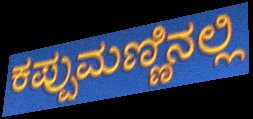
ಕಪ್ಪುಮಣ್ಣಿನಲ್ಲಿ